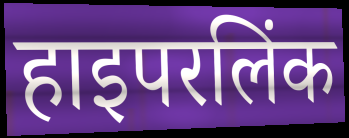
हाइपरलिंक